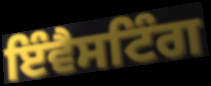
ਇੰਵੈਸਟਿੰਗ